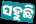
ସହୁଛି